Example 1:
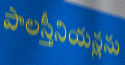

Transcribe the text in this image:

పాలస్తీనియన్లను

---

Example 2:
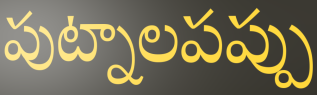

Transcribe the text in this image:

పుట్నాలపప్పు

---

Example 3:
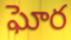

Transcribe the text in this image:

ఘోర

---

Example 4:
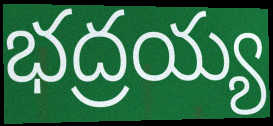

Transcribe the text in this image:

భద్రయ్య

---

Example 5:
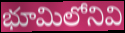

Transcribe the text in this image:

భూమిలోనివి